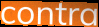
contra